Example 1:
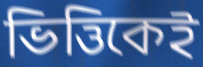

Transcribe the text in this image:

ভিত্তিকেই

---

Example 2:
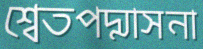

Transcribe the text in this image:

শ্বেতপদ্মাসনা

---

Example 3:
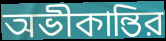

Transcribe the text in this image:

অভীকান্তির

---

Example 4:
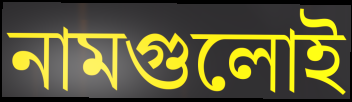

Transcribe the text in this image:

নামগুলোই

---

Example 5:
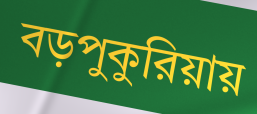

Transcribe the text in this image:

বড়পুকুরিয়ায়